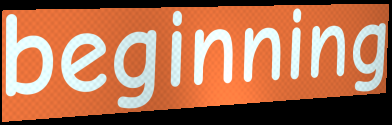
beginning